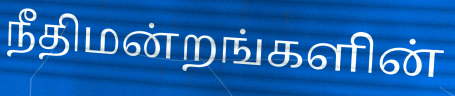
நீதிமன்றங்களின்